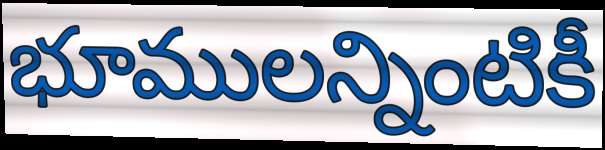
భూములన్నింటికీ